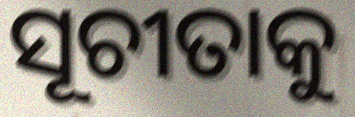
ସୂଚୀତାକୁ